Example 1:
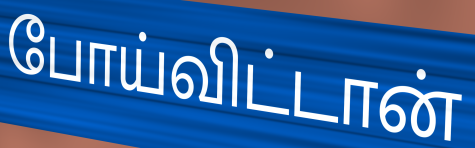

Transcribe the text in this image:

போய்விட்டான்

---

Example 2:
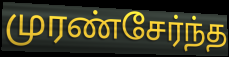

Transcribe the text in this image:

முரண்சேர்ந்த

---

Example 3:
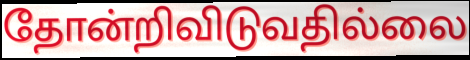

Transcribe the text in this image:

தோன்றிவிடுவதில்லை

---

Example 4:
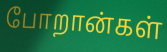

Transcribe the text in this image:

போறான்கள்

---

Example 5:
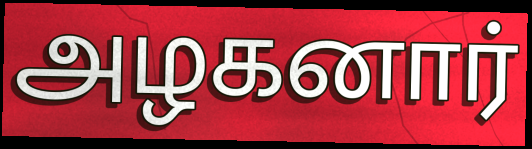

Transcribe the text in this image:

அழகனார்